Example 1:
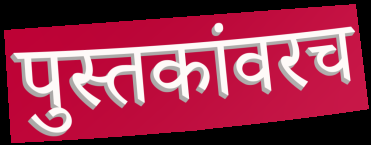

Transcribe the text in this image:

पुस्तकांवरच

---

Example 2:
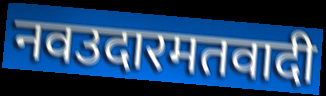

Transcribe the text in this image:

नवउदारमतवादी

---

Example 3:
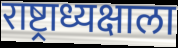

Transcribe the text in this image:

राष्ट्राध्यक्षाला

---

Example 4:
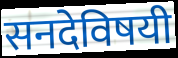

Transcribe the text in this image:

सनदेविषयी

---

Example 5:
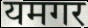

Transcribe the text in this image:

यमगर